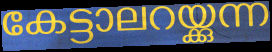
കേട്ടാലറയ്ക്കുന്ന